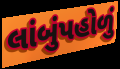
લાંબુંપહોળું